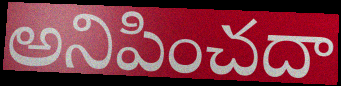
అనిపించదా